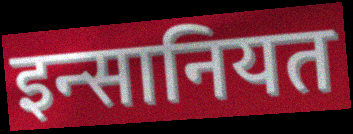
इन्सानियत